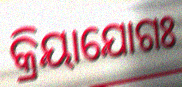
କ୍ରିୟାଯୋଗଃ